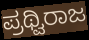
ಪ್ರಥ್ವಿರಾಜ